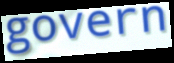
govern